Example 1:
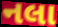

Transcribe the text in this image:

નલા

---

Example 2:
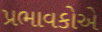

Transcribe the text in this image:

પ્રભાવકોએ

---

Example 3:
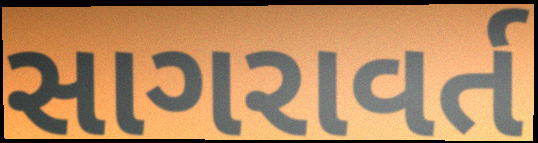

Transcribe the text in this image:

સાગરાવર્ત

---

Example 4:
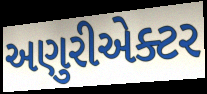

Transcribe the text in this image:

અણુરીએક્ટર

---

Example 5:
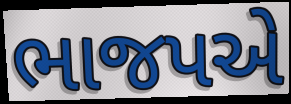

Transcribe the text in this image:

ભાજપએ